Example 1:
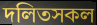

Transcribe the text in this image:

দলিতসকল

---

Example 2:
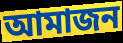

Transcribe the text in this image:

আমাজন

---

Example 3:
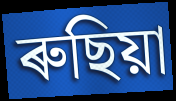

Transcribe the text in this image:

ৰুছিয়া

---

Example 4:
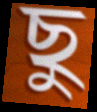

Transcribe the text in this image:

ছু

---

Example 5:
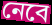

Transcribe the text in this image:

নেবে